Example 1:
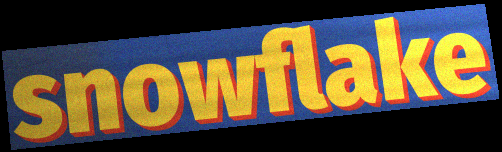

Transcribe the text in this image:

snowflake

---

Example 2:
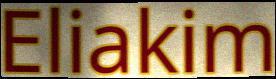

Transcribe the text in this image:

Eliakim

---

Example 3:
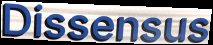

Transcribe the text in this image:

Dissensus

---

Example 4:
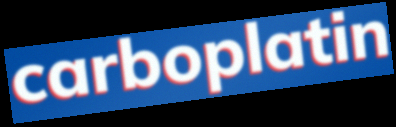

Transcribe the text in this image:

carboplatin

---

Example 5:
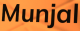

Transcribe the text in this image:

Munjal